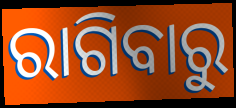
ରାଗିବାରୁ